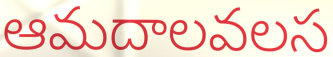
ఆమదాలవలస